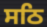
ਸਠਿ